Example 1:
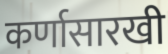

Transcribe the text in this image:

कर्णासारखी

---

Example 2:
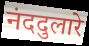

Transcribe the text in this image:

नंददुलारे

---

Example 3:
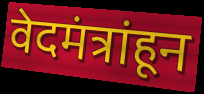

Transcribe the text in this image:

वेदमंत्रांहून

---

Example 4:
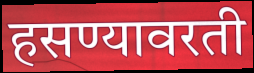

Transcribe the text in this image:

हसण्यावरती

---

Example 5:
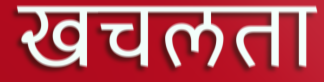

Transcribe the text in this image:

खचलता